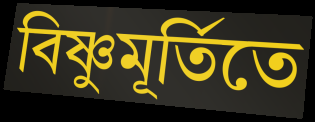
বিষ্ণুমূর্তিতে